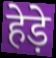
हेड़े